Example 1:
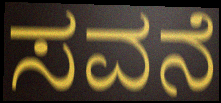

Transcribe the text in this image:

ಸವನೆ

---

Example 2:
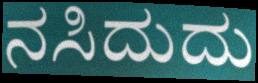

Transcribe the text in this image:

ನಸಿದುದು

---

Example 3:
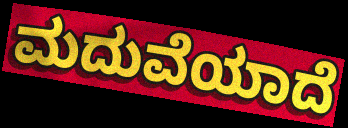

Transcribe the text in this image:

ಮದುವೆಯಾದೆ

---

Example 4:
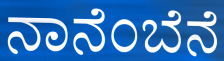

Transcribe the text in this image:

ನಾನೆಂಬೆನೆ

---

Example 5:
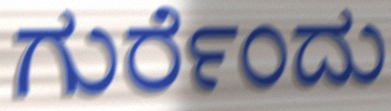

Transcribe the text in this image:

ಗುರ್ರೆಂದು